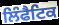
ਲਿੰਫੈਟਿਕ